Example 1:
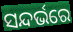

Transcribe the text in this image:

ସନ୍ଦର୍ଭରେ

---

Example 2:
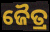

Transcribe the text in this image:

ଜୈତ୍ର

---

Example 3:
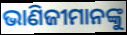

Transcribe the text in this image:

ଭାଣିଜୀମାନଙ୍କୁ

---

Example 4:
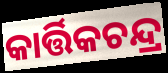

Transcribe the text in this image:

କାର୍ତ୍ତିକଚନ୍ଦ୍ର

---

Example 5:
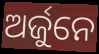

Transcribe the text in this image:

ଅର୍ଜୁନେ